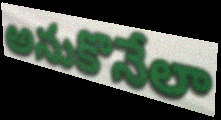
అనుకొనేలా